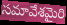
సమావేశమైరి